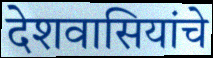
देशवासियांचे